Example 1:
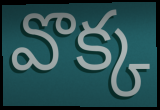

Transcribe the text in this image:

వొక్క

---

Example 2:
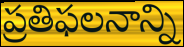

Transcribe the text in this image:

ప్రతిఫలనాన్ని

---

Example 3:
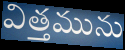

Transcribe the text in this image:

విత్తమును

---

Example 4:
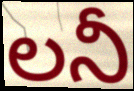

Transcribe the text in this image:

లనీ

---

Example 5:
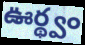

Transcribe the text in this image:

ఊర్థ్వం